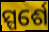
ସ୍ପର୍ଶେ